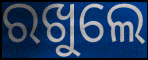
ରଖୁଲେ